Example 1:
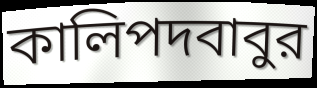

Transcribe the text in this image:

কালিপদবাবুর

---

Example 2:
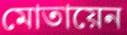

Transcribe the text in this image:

মোতায়েন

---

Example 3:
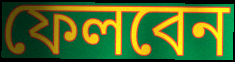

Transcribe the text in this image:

ফেলবেন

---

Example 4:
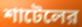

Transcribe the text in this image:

শাটেলের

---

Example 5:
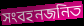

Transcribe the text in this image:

সংবহনজনিত